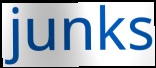
junks